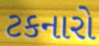
ટકનારો